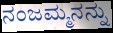
ನಂಜಮ್ಮನನ್ನು